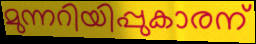
മുന്നറിയിപ്പുകാരന്